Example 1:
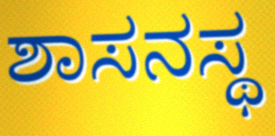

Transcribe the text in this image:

ಶಾಸನಸ್ಥ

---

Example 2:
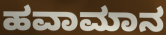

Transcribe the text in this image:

ಹವಾಮಾನ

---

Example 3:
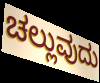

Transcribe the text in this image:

ಚಲ್ಲುವುದು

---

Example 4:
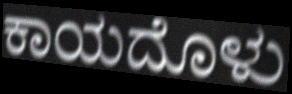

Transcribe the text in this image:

ಕಾಯದೊಳು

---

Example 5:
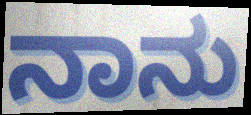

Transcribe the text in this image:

ನಾನು